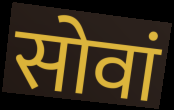
सोवां